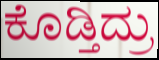
ಕೊಡ್ತಿದ್ರು